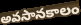
అవసానకాలం